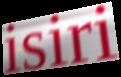
isiri